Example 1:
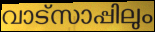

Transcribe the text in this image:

വാട്സാപ്പിലും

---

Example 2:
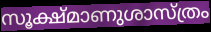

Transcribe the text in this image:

സൂക്ഷ്മാണുശാസ്ത്രം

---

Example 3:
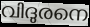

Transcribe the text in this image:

വിദുരനെ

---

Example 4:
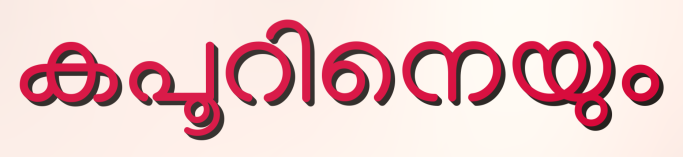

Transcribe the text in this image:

കപൂറിനെയും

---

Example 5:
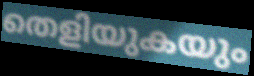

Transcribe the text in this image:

തെളിയുകയും